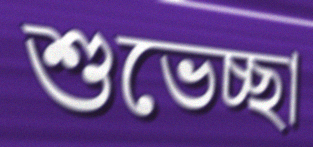
শুভেচ্ছা